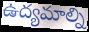
ఉద్యమాల్ని